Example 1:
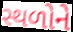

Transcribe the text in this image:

સ્થળોને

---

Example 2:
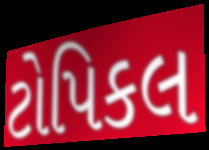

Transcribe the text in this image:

ટોપિકલ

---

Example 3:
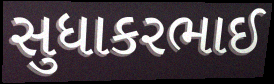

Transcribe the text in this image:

સુધાકરભાઈ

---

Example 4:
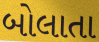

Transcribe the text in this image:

બોલાતા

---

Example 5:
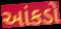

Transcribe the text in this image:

આંકડો